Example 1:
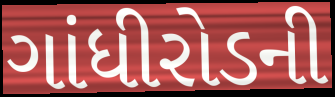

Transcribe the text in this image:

ગાંધીરોડની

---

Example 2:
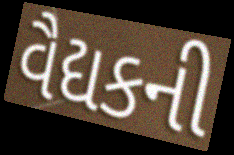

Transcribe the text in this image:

વૈદ્યકની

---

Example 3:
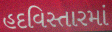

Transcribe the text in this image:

હદવિસ્તારમાં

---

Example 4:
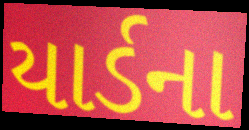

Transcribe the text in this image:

યાર્ડના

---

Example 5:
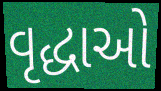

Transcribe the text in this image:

વૃદ્ધાઓ